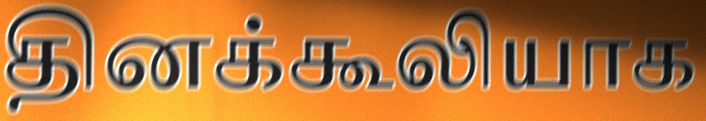
தினக்கூலியாக